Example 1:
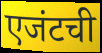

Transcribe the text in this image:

एजंटची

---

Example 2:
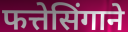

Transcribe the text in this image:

फत्तेसिंगाने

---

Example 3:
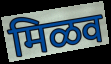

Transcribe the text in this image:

मिळव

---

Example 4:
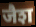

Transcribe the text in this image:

जैश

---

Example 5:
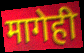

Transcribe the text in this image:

मागेही